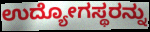
ಉದ್ಯೋಗಸ್ಥರನ್ನು